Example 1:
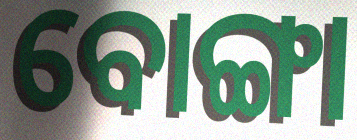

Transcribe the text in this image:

ବୋଙ୍ଗା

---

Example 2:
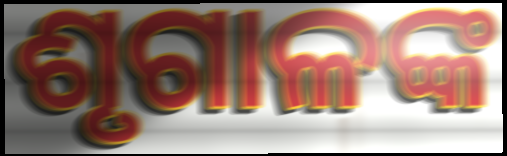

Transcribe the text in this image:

ଶୃଗାଳଙ୍କ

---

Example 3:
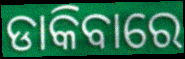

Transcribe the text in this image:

ଡାକିବାରେ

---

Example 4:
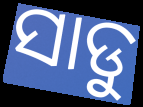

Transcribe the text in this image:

ସାଡୁ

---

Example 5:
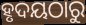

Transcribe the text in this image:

ହୃଦୟଠାରୁ